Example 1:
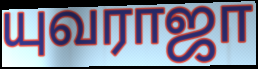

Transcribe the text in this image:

யுவராஜா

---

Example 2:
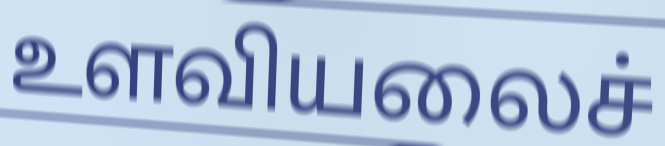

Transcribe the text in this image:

உளவியலைச்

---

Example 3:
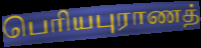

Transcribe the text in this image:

பெரியபுராணத்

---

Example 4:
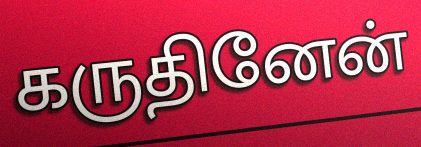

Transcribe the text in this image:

கருதினேன்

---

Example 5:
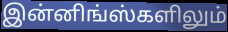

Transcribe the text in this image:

இன்னிங்ஸ்களிலும்